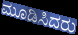
ಮೂಡಿಸಿದರು